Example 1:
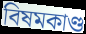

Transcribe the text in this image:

বিষমকাণ্ড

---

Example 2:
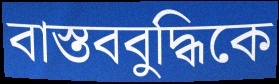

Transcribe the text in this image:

বাস্তববুদ্ধিকে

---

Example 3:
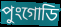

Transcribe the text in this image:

পুংগোডি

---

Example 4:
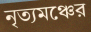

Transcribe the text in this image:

নৃত্যমঞ্চের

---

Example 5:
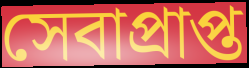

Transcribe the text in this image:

সেবাপ্রাপ্ত